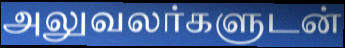
அலுவலர்களுடன்